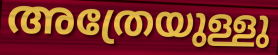
അത്രേയുള്ളു